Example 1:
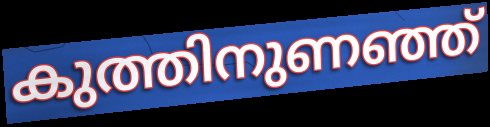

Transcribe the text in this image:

കുത്തിനുണഞ്ഞ്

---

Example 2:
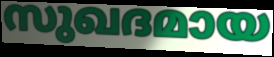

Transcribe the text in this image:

സുഖദമായ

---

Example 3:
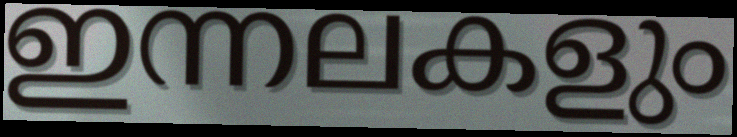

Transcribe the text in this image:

ഇന്നലകളും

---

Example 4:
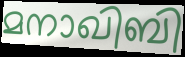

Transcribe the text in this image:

മനാഖിബി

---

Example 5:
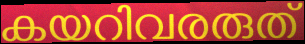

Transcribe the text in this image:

കയറിവരരുത്